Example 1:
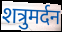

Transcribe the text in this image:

शत्रुमर्दन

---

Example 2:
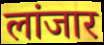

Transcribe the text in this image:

लांजार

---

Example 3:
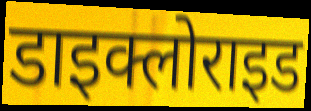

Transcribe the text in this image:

डाइक्लोराइड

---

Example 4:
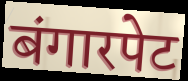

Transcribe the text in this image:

बंगारपेट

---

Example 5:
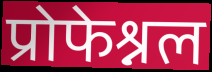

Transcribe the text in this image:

प्रोफेश्नल